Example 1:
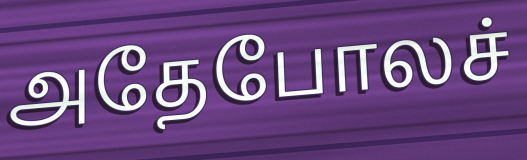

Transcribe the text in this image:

அதேபோலச்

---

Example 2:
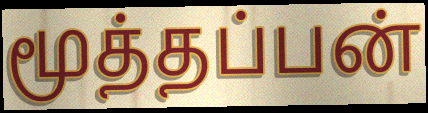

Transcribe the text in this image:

மூத்தப்பன்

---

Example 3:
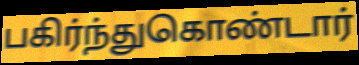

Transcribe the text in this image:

பகிர்ந்துகொண்டார்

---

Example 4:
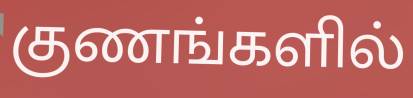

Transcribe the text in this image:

குணங்களில்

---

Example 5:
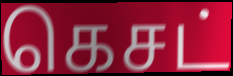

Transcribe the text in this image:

கெசட்